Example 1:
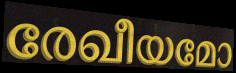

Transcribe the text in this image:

രേഖീയമോ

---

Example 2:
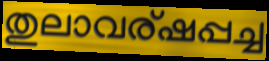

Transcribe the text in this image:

തുലാവര്ഷപ്പച്ച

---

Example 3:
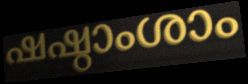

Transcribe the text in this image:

ഷഷ്ഠാംശാം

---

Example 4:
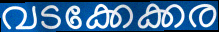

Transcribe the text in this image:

വടക്കേക്കര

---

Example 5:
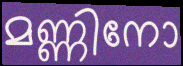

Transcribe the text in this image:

മണ്ണിനോ